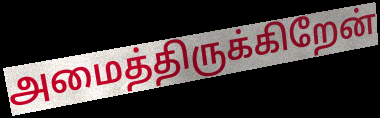
அமைத்திருக்கிறேன்